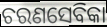
ଚରଣସେବିକା